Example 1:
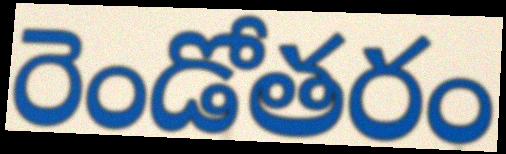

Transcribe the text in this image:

రెండోతరం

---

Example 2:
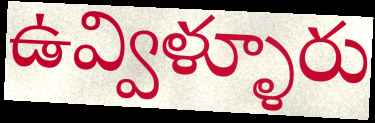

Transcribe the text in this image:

ఉవ్విళ్ళూరు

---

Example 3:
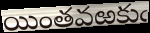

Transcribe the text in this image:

యింతవఱకుఁ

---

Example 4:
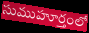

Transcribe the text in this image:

సుముహూర్తంలో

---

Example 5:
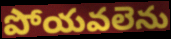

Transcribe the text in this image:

పోయవలెను